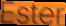
Ester